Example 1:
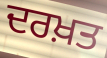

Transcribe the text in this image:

ਦਰਖ਼ਤ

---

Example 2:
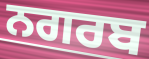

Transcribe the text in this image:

ਨਗਰਬ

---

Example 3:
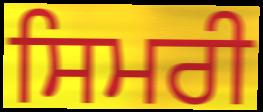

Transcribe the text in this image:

ਸਿਮਰੀ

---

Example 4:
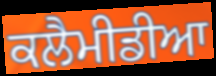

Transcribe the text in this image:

ਕਲੈਮੀਡੀਆ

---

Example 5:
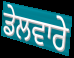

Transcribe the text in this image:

ਡੇਲਵਾਰੇ